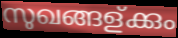
സുഖങ്ങള്ക്കും